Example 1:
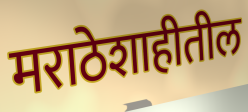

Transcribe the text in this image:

मराठेशाहीतील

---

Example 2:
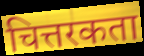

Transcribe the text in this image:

चित्तरकता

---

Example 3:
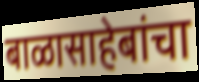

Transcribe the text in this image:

बाळासाहेबांचा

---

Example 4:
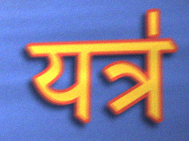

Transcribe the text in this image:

यत्र॑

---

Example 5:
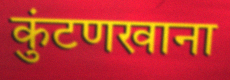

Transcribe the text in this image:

कुंटणखाना